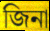
জিনা